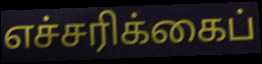
எச்சரிக்கைப்